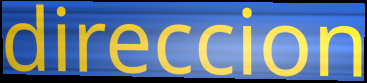
direccion